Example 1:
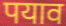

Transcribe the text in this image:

पयाव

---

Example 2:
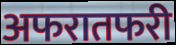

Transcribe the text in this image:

अफरातफरी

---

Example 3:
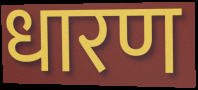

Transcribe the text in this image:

धारण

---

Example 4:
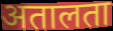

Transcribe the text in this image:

अतालता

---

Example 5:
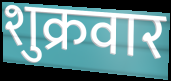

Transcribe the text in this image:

शुक्रवार